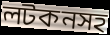
লটকনসহ